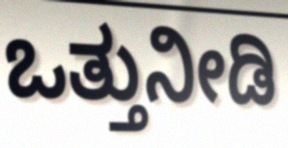
ಒತ್ತುನೀಡಿ